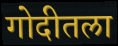
गोदीतला